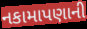
નકામાપણાની